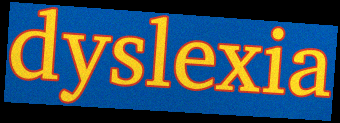
dyslexia